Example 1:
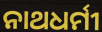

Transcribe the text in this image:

ନାଥଧର୍ମୀ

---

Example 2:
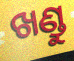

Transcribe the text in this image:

ଖଣ୍ଡୁ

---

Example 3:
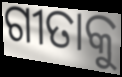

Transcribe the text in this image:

ଗୀତାକୁ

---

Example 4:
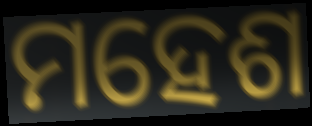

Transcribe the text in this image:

ମହେଶ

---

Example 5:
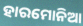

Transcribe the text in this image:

ହାରମୋନିଆ